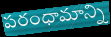
పరంధామాన్ని